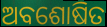
ଅବଶୋଷିତ